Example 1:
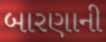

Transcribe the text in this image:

બારણાની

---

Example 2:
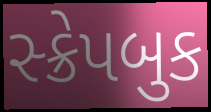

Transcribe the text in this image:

સ્ક્રેપબુક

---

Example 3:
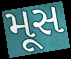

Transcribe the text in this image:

મૂસ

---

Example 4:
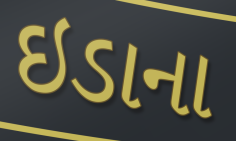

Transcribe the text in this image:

ઇડાના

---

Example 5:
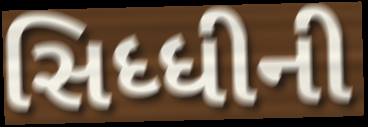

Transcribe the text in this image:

સિધ્ધીની